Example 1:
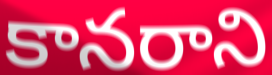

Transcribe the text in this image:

కానరాని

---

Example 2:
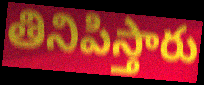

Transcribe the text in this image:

తినిపిస్తారు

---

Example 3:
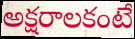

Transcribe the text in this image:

అక్షరాలకంటే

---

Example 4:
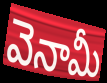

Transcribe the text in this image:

వెనామీ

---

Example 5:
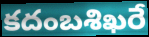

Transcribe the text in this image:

కదంబశిఖరే